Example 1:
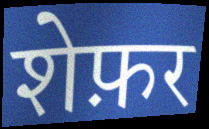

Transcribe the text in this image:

शेफ़र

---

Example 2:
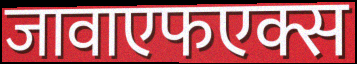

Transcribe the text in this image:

जावाएफएक्स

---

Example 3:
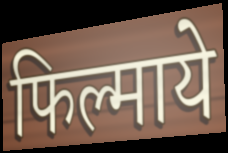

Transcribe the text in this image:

फिल्माये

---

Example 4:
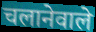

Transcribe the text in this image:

चलानेवाले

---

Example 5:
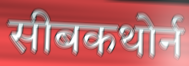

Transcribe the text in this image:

सीबकथोर्न